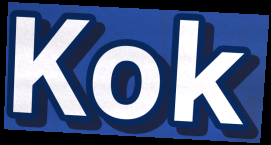
Kok